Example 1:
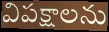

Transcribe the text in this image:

విపక్షాలను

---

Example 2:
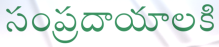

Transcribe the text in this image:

సంప్రదాయాలకి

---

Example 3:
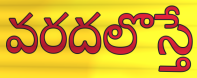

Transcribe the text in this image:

వరదలొస్తే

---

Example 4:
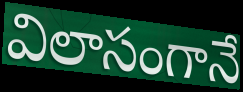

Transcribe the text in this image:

విలాసంగానే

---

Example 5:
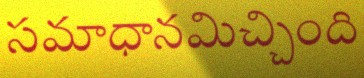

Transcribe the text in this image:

సమాధానమిచ్చింది